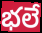
భలే